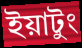
ইয়াটুং